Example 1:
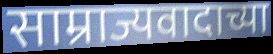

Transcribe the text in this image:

साम्राज्यवादाच्या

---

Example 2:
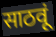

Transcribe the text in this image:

साठवूं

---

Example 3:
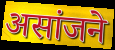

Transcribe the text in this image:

असांजने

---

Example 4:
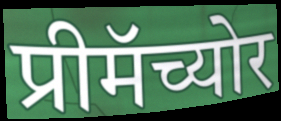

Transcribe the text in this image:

प्रीमॅच्योर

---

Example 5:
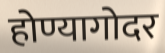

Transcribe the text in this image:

होण्यागोदर